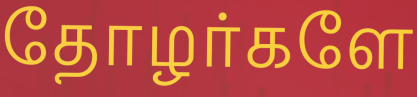
தோழர்களே